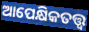
ଆପେକ୍ଷିକତତ୍ତ୍ୱ